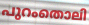
പുറംതൊലി